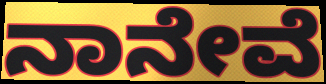
ನಾನೇವೆ